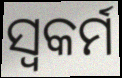
ସ୍ଵକର୍ମ